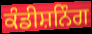
ਕੰਡੀਸ਼ਨਿੰਗ